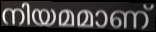
നിയമമാണ്